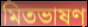
মিতভাষণ